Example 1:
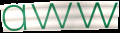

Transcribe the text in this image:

aww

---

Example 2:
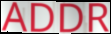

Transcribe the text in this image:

ADDR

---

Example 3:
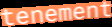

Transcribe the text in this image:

tenement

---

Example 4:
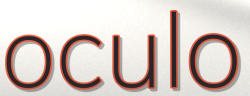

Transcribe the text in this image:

oculo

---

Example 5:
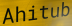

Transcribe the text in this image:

Ahitub